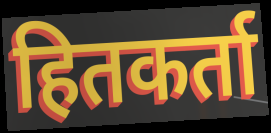
हितकर्ता